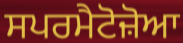
ਸਪਰਮੈਟੋਜ਼ੋਆ